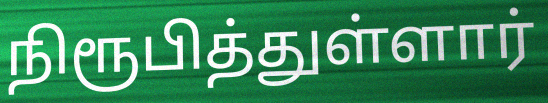
நிரூபித்துள்ளார்